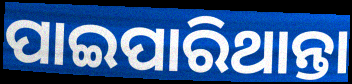
ପାଇପାରିଥାନ୍ତା